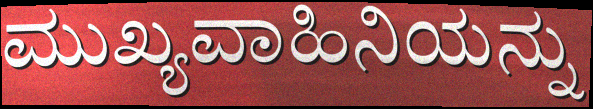
ಮುಖ್ಯವಾಹಿನಿಯನ್ನು